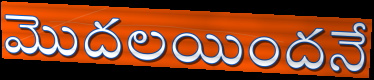
మొదలయిందనే